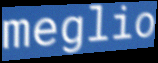
meglio